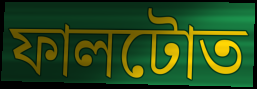
ফালটোত